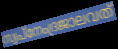
സ്വപ്നേംദ്രജാലവത്